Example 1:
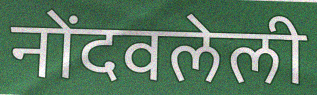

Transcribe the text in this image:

नोंदवलेली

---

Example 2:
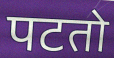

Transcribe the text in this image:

पटतो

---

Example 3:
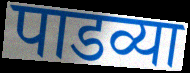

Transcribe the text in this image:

पाडव्या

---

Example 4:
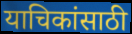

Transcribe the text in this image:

याचिकांसाठी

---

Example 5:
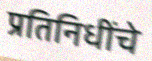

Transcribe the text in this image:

प्रतिनिधींचे